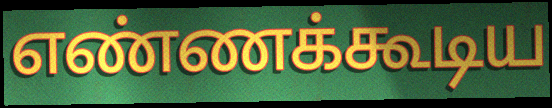
எண்ணக்கூடிய